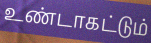
உண்டாகட்டும்